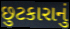
છુટકારાનું